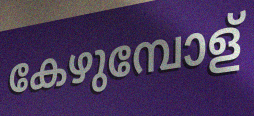
കേഴുമ്പോള്